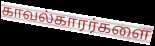
காவல்காரர்களை